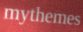
mythemes